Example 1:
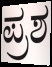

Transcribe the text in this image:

ಪ್ರಶ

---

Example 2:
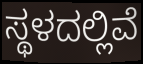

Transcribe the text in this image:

ಸ್ಥಳದಲ್ಲಿವೆ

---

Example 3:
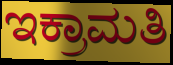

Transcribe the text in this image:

ಇಕ್ರಾಮತಿ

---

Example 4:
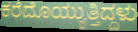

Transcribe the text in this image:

ಕರೆದೊಯ್ಯುತ್ತಿದ್ದಳು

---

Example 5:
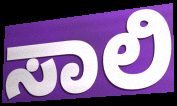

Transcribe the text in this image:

ಸಾಲಿ